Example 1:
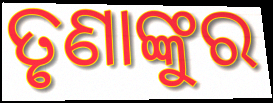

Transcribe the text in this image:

ତୃଣାଙ୍କୁର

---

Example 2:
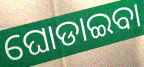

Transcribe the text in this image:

ଘୋଡାଇବା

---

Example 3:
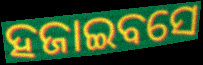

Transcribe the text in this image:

ହଜାଇବସେ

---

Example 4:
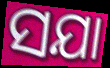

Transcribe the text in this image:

ସଯା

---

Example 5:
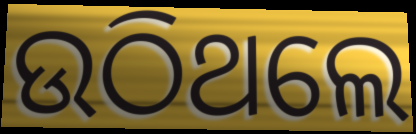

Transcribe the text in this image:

ଉଠିଥଲେ